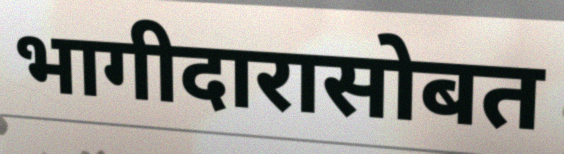
भागीदारासोबत